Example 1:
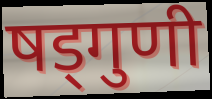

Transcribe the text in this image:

षड्गुणी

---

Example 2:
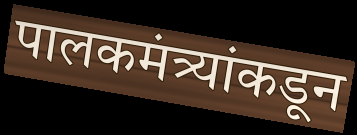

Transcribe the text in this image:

पालकमंत्र्यांकडून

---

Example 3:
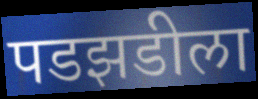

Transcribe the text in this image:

पडझडीला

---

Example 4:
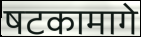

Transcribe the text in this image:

षटकामागे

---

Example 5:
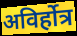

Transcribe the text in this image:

अविर्होत्र